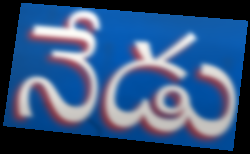
నేడు